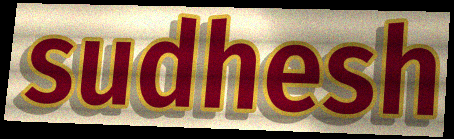
sudhesh